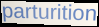
parturition